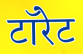
टॉरेट